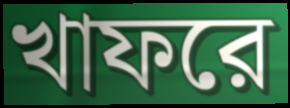
খাফরে